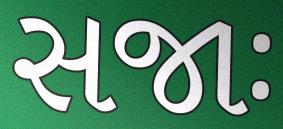
સજાઃ